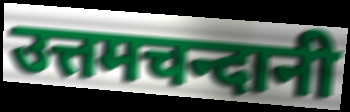
उत्तमचन्दानी